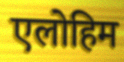
एलोहिम